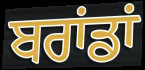
ਬਰਾਂਡਾਂ